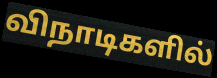
விநாடிகளில்